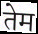
तेम